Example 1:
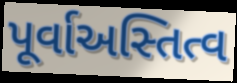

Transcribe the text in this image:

પૂર્વાઅસ્તિત્વ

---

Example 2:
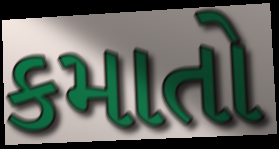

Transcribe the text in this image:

કમાતો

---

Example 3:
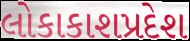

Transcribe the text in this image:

લોકાકાશપ્રદેશ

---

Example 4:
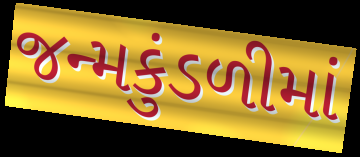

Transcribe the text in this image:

જન્મકુંડળીમાં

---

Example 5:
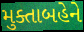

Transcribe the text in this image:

મુક્તાબહેને